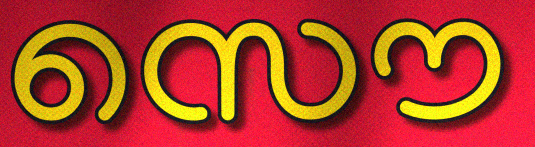
സൌ